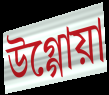
উগ্গোয়া